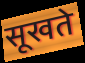
सूखते